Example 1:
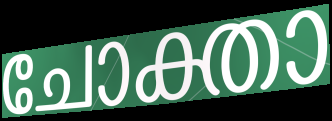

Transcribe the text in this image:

ചോക്താ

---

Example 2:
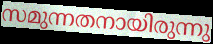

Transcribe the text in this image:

സമുന്നതനായിരുന്നു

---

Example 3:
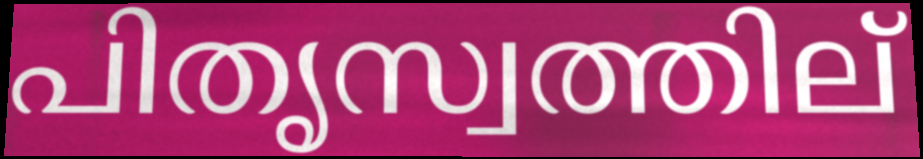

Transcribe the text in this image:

പിതൃസ്വത്തില്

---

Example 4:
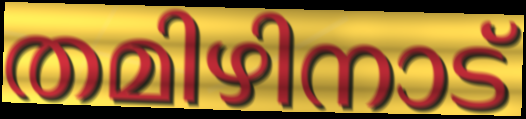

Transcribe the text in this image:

തമിഴിനാട്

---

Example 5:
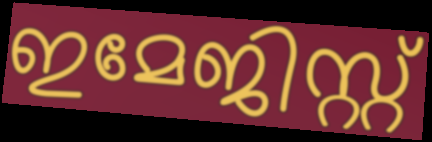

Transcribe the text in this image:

ഇമേജിസ്റ്റ്